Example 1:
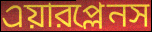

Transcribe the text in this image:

এয়ারপ্লেনস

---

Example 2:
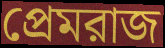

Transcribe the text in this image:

প্রেমরাজ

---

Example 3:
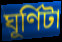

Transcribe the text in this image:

ঘূর্ণিটা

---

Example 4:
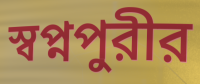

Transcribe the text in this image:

স্বপ্নপুরীর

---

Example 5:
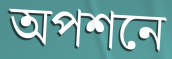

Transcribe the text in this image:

অপশনে